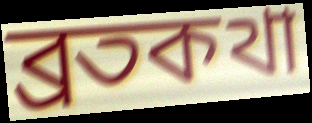
ব্রতকথা